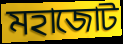
মহাজোট